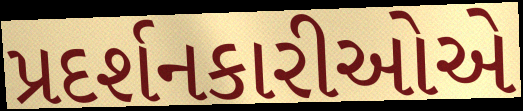
પ્રદર્શનકારીઓએ